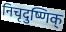
निचृदुष्णिक्